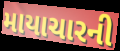
માયાચારની